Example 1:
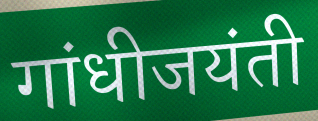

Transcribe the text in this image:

गांधीजयंती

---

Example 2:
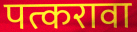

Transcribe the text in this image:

पत्करावा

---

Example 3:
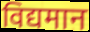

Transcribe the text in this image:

विद्यमान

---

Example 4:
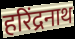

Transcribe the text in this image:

हरिंद्रनाथ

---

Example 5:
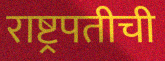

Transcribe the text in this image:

राष्ट्रपतीची